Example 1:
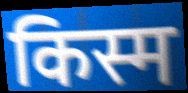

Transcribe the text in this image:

किस्म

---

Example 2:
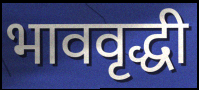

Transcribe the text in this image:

भाववृद्धी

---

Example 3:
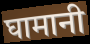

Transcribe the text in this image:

घामानी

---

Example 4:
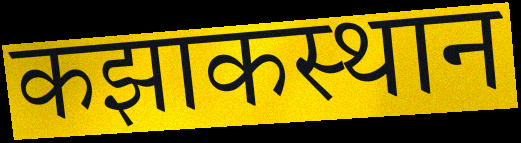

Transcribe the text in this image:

कझाकस्थान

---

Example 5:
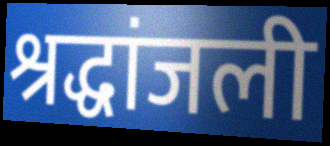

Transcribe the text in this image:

श्रद्धांजली